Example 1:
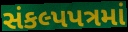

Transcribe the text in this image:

સંકલ્પપત્રમાં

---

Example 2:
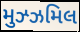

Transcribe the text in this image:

મુઝ્ઝમિલ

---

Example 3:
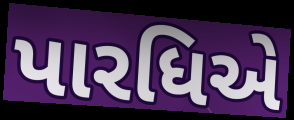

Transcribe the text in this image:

પારધિએ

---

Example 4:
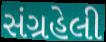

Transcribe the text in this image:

સંગ્રહેલી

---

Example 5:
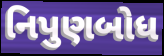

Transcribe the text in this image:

નિપુણબોધ